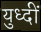
युध्दीं